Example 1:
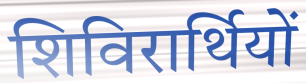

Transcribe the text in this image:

शिविरार्थियों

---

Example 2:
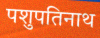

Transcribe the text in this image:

पशुपतिनाथ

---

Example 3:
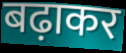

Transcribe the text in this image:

बढ़ाकर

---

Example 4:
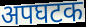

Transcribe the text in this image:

अपघटक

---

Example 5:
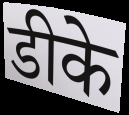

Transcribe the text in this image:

डीके